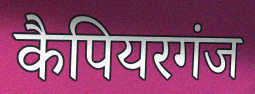
कैपियरगंज